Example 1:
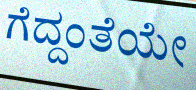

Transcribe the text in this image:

ಗೆದ್ದಂತೆಯೇ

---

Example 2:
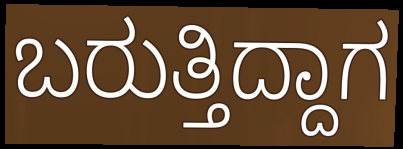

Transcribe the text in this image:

ಬರುತ್ತಿದ್ದಾಗ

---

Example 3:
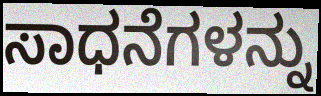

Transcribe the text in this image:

ಸಾಧನೆಗಳನ್ನು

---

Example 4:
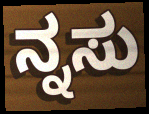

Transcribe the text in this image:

ನ್ನಸು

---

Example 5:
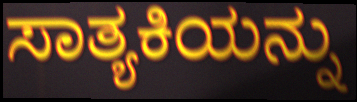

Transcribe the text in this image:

ಸಾತ್ಯಕಿಯನ್ನು